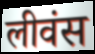
लीवंस